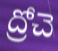
ద్రోచె